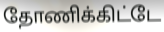
தோணிக்கிட்டே